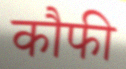
कौफी